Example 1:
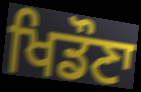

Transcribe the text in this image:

ਖਿਡੌਣਾ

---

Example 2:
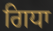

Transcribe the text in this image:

ਗਿਧਾ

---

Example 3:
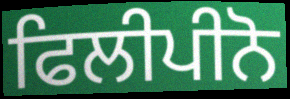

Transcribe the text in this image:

ਫਿਲੀਪੀਨੋ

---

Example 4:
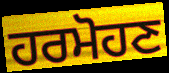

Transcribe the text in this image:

ਹਰਮੋਹਣ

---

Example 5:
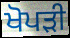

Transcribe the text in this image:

ਖੋਪੜੀ